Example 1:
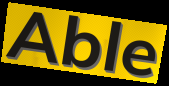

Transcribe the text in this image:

Able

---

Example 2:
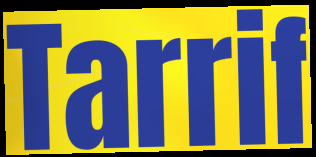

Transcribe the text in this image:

Tarrif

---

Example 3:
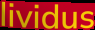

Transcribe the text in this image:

lividus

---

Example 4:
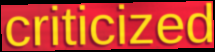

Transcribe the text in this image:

criticized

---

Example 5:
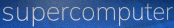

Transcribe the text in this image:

supercomputer